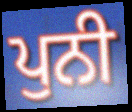
ਪੁਨੀ